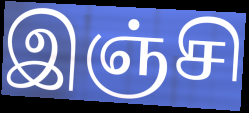
இஞ்சி